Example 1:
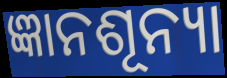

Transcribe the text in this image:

ଜ୍ଞାନଶୂନ୍ୟା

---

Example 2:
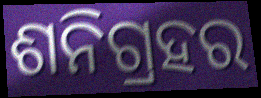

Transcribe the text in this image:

ଶନିଗ୍ରହର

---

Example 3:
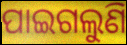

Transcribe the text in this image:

ପାଇଗଲୁଣି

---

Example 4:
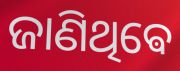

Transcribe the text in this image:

ଜାଣିଥିଵେ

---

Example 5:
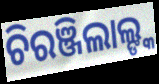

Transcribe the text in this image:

ଚିରଞ୍ଜିଲାଲ୍ଙ୍କ